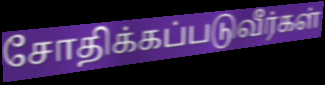
சோதிக்கப்படுவீர்கள்